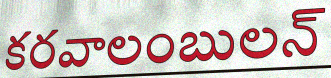
కరవాలంబులన్